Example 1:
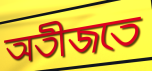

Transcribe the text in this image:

অতীজতে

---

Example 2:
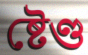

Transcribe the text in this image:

ষ্টেণ্ড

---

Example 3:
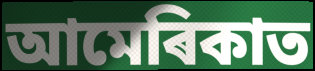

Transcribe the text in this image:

আমেৰিকাত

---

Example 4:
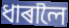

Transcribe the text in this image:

ধাৰালৈ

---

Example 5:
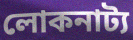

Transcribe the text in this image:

লোকনাট্য